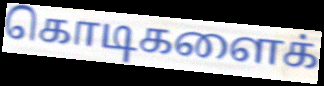
கொடிகளைக்